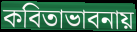
কবিতাভাবনায়